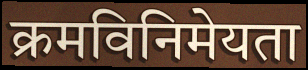
क्रमविनिमेयता